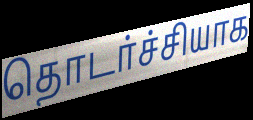
தொடர்ச்சியாக